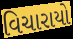
વિચારાયો